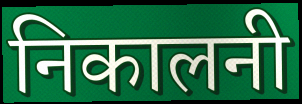
निकालनी